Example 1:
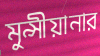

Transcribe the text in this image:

মুন্সীয়ানার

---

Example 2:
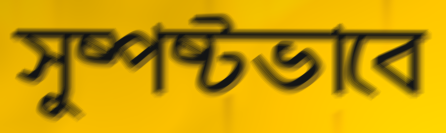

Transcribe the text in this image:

সুষ্পষ্টভাবে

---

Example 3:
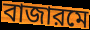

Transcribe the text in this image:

বাজারমে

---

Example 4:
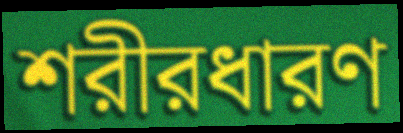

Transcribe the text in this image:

শরীরধারণ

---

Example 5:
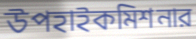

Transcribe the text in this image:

উপহাইকমিশনার